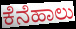
ಕೆನೆಹಾಲು